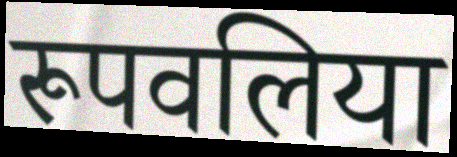
रूपवलिया